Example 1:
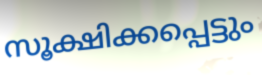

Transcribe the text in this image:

സൂക്ഷിക്കപ്പെട്ടും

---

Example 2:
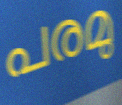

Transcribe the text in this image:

പരമു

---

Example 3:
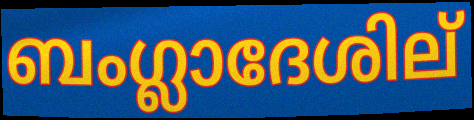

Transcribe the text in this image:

ബംഗ്ലാദേശില്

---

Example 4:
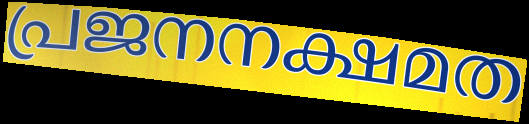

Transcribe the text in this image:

പ്രജനനക്ഷമത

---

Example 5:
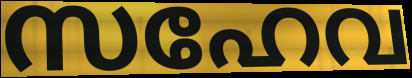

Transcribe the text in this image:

സഹേവ